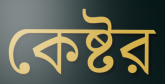
কেষ্টর